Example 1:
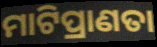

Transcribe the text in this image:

ମାଟିପ୍ରାଣତା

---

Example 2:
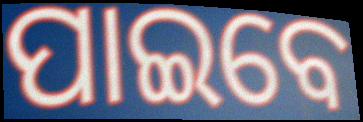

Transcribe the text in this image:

ପାଇବେ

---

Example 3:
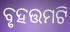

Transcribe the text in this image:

ବୃହତ୍ତମଟି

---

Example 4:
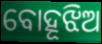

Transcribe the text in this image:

ବୋହୂଝିଅ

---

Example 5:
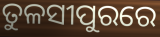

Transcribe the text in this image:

ତୁଳସୀପୁରରେ